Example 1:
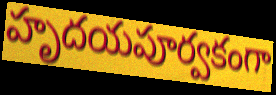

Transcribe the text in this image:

హృదయపూర్వకంగా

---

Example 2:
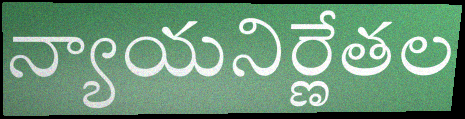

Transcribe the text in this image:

న్యాయనిర్ణేతల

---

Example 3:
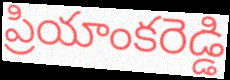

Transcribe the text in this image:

ప్రియాంకరెడ్డి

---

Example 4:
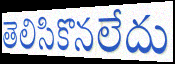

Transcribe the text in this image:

తెలిసికొనలేదు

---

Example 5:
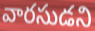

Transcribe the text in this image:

వారసుడని